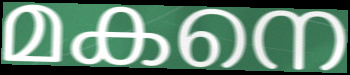
മകനെ